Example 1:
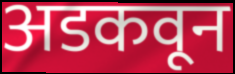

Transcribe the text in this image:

अडकवून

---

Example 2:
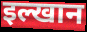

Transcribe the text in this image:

इल्खान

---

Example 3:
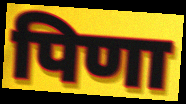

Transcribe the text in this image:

पिणा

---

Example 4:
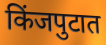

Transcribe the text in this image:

किंजपुटात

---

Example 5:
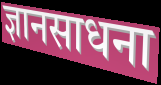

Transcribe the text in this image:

ज्ञानसाधना